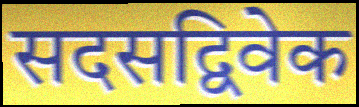
सदसद्विवेक